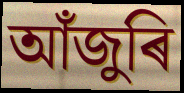
আঁজুৰি